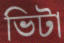
ভিটা